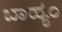
ಬಾಹ್ಯಂ